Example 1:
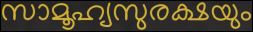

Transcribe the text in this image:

സാമൂഹ്യസുരക്ഷയും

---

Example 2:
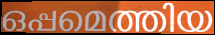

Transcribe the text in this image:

ഒപ്പമെത്തിയ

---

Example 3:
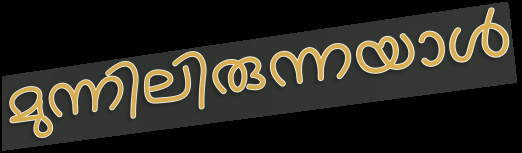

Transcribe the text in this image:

മുന്നിലിരുന്നയാൾ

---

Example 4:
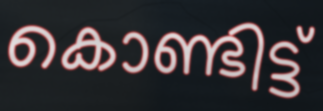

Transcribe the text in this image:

കൊണ്ടിട്ട്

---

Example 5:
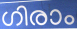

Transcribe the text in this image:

ഗിരാം